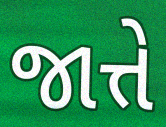
જાત્તે